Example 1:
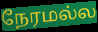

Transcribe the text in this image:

நேரமல்ல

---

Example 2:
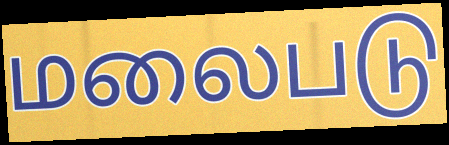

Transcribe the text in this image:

மலைபடு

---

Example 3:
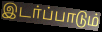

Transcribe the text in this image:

இடர்ப்பாடும்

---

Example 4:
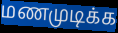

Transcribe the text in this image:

மணமுடிக்க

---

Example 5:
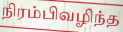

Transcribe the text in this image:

நிரம்பிவழிந்த